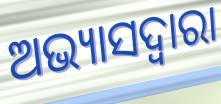
ଅଭ୍ୟାସଦ୍ୱାରା